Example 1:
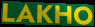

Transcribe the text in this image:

LAKHO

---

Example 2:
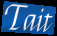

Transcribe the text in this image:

Tait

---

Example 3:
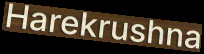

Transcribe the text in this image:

Harekrushna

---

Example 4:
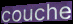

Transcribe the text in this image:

couche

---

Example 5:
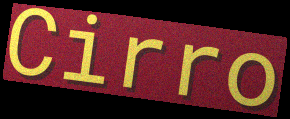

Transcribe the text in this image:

Cirro